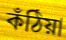
কঁঠিয়া